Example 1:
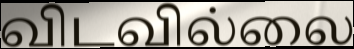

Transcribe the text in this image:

விடவில்லை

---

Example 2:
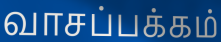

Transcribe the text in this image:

வாசப்பக்கம்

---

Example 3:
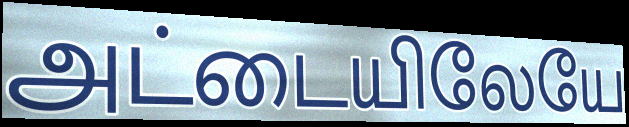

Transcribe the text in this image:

அட்டையிலேயே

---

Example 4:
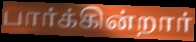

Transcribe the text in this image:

பார்க்கின்றார்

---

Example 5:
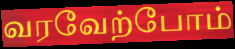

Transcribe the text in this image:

வரவேற்போம்